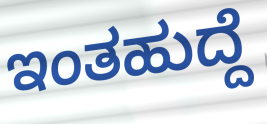
ಇಂತಹುದ್ದೆ